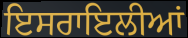
ਇਸਰਾਇਲੀਆਂ